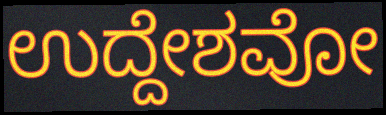
ಉದ್ದೇಶವೋ